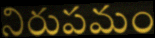
నిరుపమం